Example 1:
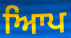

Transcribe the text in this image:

ਆਿਪ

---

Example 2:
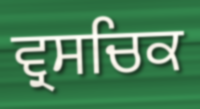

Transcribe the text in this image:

ਵ੍ਰਸਚਿਕ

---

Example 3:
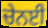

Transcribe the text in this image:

ਚੇਨਈ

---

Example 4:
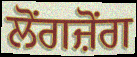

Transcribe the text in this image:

ਲੋਂਗਜ਼ੋਂਗ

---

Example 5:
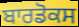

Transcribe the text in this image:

ਬਾਰਡੋਕਸ